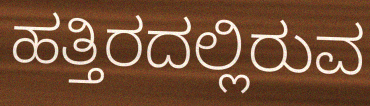
ಹತ್ತಿರದಲ್ಲಿರುವ